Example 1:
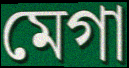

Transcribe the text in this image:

মেগা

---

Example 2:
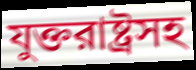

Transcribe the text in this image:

যুক্তরাষ্ট্রসহ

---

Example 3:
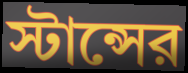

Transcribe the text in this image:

স্টান্সের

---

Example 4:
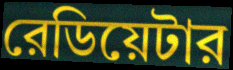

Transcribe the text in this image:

রেডিয়েটার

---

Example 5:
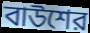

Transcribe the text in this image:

বাউশের